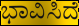
ಭಾವಿಸಿದೆ